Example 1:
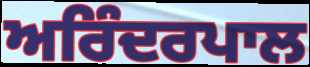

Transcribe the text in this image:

ਅਰਿੰਦਰਪਾਲ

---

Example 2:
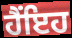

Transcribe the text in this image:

ਹੈਂਇਹ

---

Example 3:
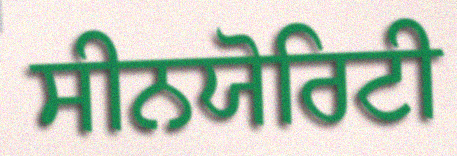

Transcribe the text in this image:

ਸੀਨਯੋਰਿਟੀ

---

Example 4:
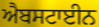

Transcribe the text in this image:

ਐਬਸਟਾਈਨ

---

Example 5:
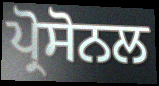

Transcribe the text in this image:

ਪ੍ਰੋਸੋਨਲ